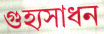
গুহ্যসাধন